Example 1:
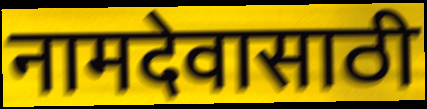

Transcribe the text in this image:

नामदेवासाठी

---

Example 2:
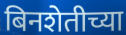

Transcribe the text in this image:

बिनशेतीच्या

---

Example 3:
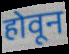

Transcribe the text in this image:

होवून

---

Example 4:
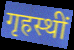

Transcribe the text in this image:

गृहस्थीं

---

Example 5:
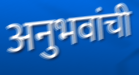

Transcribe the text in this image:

अनुभवांची